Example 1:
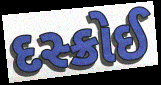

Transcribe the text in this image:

દસ્ક્રોઈ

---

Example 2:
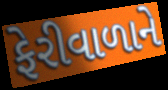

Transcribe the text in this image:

ફેરીવાળાને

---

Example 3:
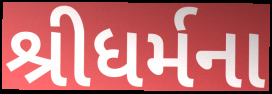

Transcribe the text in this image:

શ્રીધર્મના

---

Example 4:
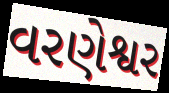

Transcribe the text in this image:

વરણેશ્વર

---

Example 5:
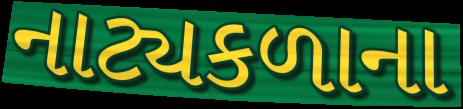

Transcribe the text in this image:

નાટ્યકળાના